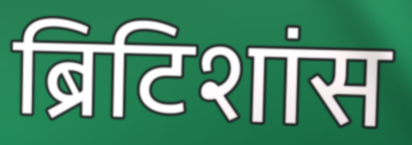
ब्रिटिशांस